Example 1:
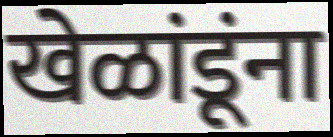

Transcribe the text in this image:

खेळांडूंना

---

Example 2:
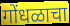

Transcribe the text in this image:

गोंधळाचा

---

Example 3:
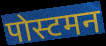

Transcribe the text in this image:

पोस्टमन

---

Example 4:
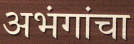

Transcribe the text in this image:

अभंगांचा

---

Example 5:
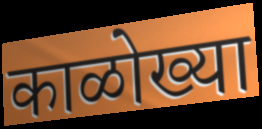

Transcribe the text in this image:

काळोख्या